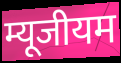
म्यूजीयम